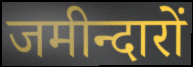
जमीन्दारों